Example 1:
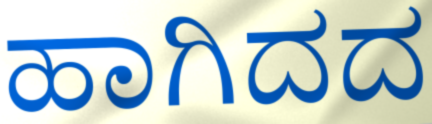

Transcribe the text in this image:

ಹಾಗಿದದ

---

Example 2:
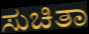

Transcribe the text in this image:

ಸುಚಿತಾ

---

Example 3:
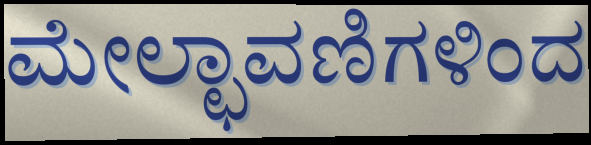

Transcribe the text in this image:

ಮೇಲ್ಛಾವಣಿಗಳಿಂದ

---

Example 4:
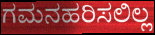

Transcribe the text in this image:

ಗಮನಹರಿಸಲಿಲ್ಲ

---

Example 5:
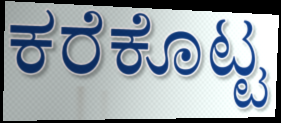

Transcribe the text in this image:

ಕರೆಕೊಟ್ಟ